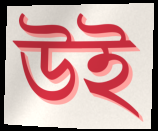
উই